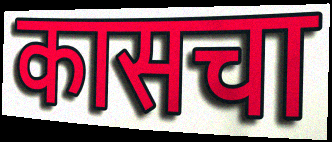
कासचा